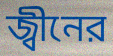
জ্বীনের